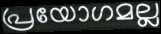
പ്രയോഗമല്ല